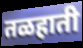
तळहाती